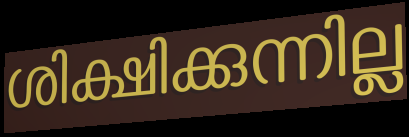
ശിക്ഷിക്കുന്നില്ല